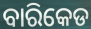
ବାରିକେଡ